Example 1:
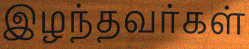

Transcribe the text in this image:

இழந்தவர்கள்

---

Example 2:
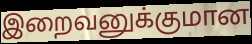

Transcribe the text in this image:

இறைவனுக்குமான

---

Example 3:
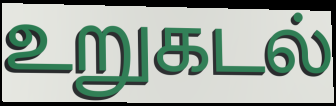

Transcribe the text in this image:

உறுகடல்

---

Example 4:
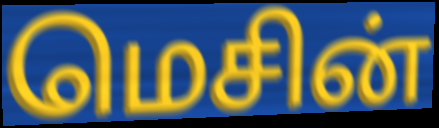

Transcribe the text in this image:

மெசின்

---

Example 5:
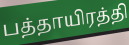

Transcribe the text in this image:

பத்தாயிரத்தி